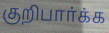
குறிபார்க்க